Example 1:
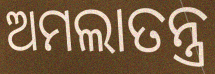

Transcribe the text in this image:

ଅମଲାତନ୍ତ୍ର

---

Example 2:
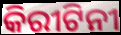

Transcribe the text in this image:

କିରୀଟିନୀ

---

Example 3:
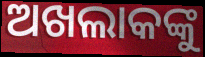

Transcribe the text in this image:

ଅଖଲାକଙ୍କୁ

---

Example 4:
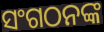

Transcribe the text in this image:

ସଂଗଠନଙ୍କ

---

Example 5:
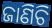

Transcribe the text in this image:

ଜାଣିଚି